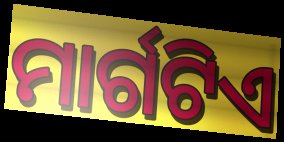
ମାର୍ଗଟିଏ